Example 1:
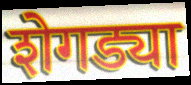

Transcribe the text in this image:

शेगड्या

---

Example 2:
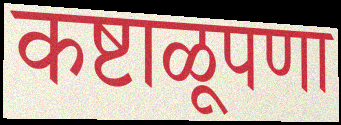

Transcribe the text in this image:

कष्टाळूपणा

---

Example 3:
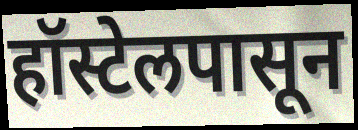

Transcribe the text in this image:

हॉस्टेलपासून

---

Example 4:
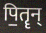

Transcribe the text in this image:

पि॒तॄन्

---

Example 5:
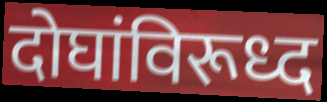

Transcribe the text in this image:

दोघांविरूध्द